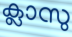
ക്ലാസു